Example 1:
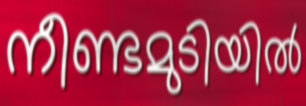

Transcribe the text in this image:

നീണ്ടമുടിയിൽ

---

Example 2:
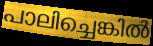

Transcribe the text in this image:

പാലിച്ചെങ്കിൽ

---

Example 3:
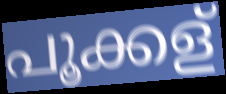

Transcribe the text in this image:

പൂക്കള്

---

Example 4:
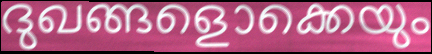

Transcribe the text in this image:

ദുഖങ്ങളൊക്കെയും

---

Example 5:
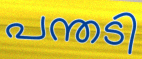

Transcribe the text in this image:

പന്തടി